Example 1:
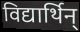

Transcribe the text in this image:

विद्यार्थिन्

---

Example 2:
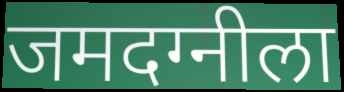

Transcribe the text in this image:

जमदग्नीला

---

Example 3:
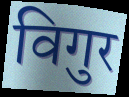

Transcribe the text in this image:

विगुर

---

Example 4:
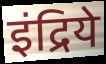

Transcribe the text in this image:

इंद्रिये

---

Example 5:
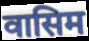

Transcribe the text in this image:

वासिम